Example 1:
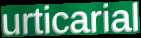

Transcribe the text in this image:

urticarial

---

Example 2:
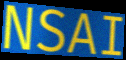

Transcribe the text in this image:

NSAI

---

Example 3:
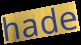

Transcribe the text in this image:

hade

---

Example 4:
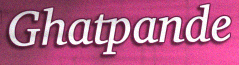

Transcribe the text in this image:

Ghatpande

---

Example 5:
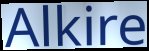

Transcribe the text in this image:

Alkire